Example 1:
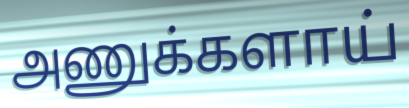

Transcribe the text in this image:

அணுக்களாய்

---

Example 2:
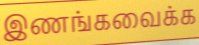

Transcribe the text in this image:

இணங்கவைக்க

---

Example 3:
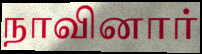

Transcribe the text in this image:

நாவினார்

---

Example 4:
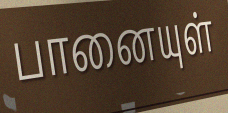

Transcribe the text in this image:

பானையுள்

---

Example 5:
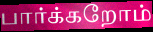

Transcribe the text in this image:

பார்க்கறோம்